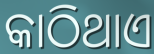
କାଠିଥାଏ